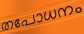
തപോധനം